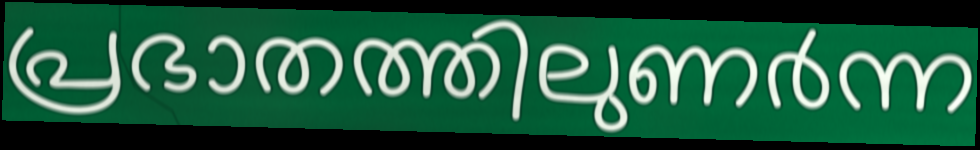
പ്രഭാതത്തിലുണർന്ന